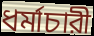
ধর্মাচারী